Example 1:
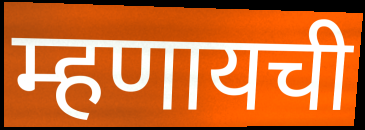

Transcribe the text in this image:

म्हणायची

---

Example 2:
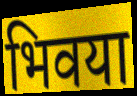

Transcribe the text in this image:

भिवया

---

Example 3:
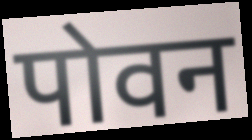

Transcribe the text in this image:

पोवन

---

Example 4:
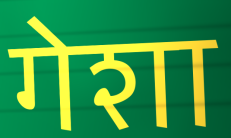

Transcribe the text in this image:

गेशा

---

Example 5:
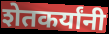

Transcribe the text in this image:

शेतकर्यांनी